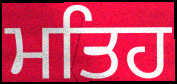
ਮਤਿਹ